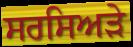
ਸਰਸਿਅੜੇ